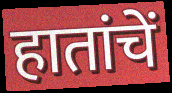
हातांचें